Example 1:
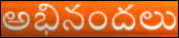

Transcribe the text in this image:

అభినందలు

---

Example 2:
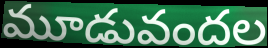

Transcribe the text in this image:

మూడువందల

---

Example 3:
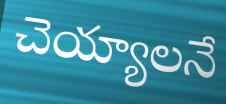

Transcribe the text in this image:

చెయ్యాలనే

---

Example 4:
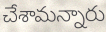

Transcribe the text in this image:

చేశామన్నారు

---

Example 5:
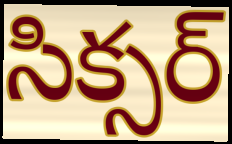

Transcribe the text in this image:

సిక్సర్